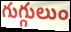
గుగ్గులుం